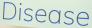
Disease